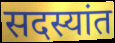
सदस्यांत